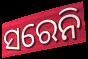
ସରେନି